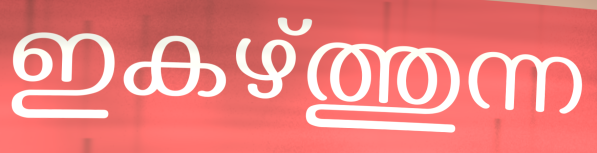
ഇകഴ്ത്തുന്ന